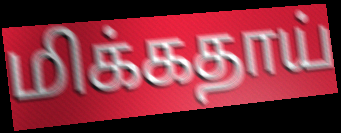
மிக்கதாய்